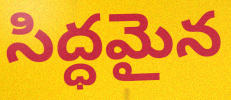
సిద్ధమైన